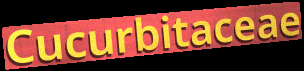
Cucurbitaceae